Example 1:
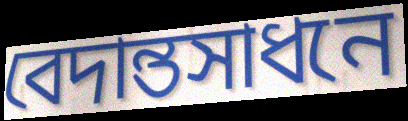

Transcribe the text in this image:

বেদান্তসাধনে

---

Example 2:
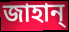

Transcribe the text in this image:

জাহান্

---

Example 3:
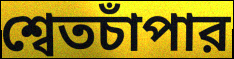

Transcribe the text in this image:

শ্বেতচাঁপার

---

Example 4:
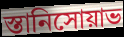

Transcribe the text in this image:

স্তানিসোয়াভ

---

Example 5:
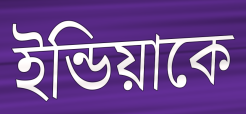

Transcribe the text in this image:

ইন্ডিয়াকে